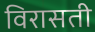
विरासती